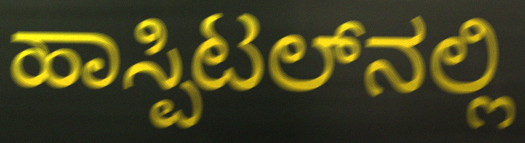
ಹಾಸ್ಪಿಟಲ್‌ನಲ್ಲಿ